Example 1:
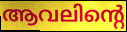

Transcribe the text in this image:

ആവലിന്റെ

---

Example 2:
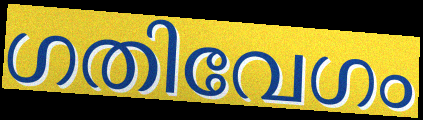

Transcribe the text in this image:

ഗതിവേഗം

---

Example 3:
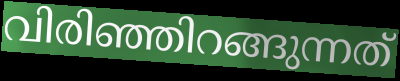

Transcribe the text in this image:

വിരിഞ്ഞിറങ്ങുന്നത്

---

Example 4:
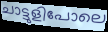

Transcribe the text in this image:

ചാട്ടുളിപോലെ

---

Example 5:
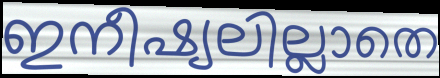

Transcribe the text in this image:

ഇനീഷ്യലില്ലാതെ